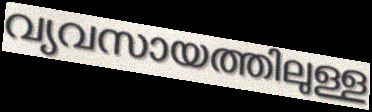
വ്യവസായത്തിലുള്ള